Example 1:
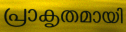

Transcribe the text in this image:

പ്രാകൃതമായി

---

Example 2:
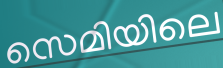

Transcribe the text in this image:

സെമിയിലെ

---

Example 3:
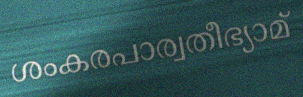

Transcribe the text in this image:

ശംകരപാര്വതീഭ്യാമ്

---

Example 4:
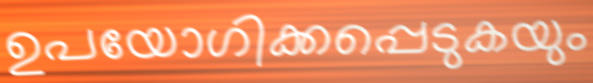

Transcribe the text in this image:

ഉപയോഗിക്കപ്പെടുകയും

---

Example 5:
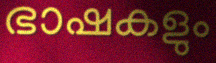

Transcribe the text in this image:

ഭാഷകളും